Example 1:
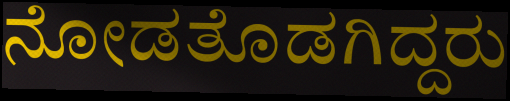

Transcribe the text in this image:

ನೋಡತೊಡಗಿದ್ದರು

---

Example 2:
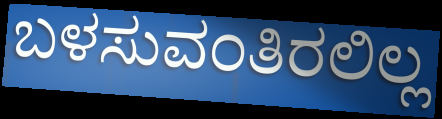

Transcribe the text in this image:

ಬಳಸುವಂತಿರಲಿಲ್ಲ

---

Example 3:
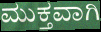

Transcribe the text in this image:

ಮುಕ್ತವಾಗಿ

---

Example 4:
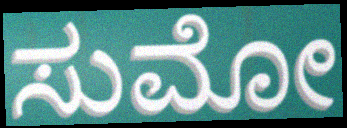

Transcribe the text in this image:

ಸುಮೋ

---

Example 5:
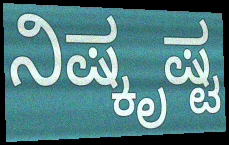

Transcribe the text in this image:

ನಿಷ್ಕೃಷ್ಟ